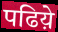
पढिय़े